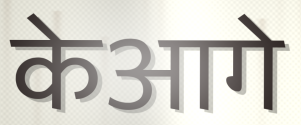
केआगे